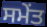
ਸਮੇਂਤ